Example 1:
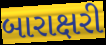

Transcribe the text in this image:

બારાક્ષરી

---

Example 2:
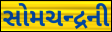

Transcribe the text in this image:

સોમચન્દ્રની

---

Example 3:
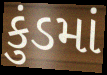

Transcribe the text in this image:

કુંડમાં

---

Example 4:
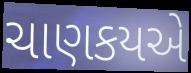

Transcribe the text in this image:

ચાણકયએ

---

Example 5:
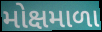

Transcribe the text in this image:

મોક્ષમાળા